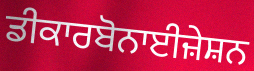
ਡੀਕਾਰਬੋਨਾਈਜ਼ੇਸ਼ਨ